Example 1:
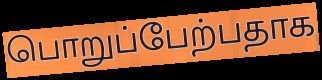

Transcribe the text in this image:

பொறுப்பேற்பதாக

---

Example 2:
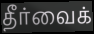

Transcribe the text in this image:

தீர்வைக்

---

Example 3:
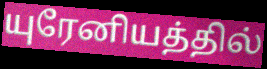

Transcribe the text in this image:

யுரேனியத்தில்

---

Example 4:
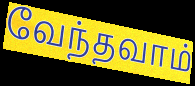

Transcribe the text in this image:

வேந்தவாம்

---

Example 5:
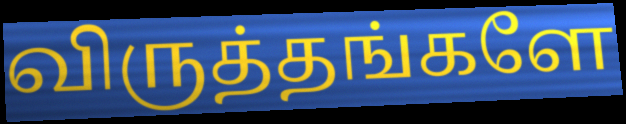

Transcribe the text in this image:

விருத்தங்களே